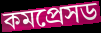
কমপ্রেসড